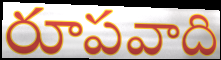
రూపవాది